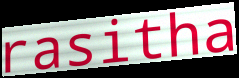
rasitha